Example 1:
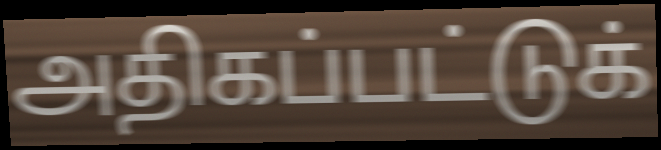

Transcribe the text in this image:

அதிகப்பட்டுக்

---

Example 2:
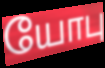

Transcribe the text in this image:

யோபு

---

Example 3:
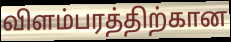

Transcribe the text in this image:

விளம்பரத்திற்கான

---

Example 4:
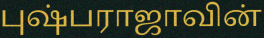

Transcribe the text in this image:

புஷ்பராஜாவின்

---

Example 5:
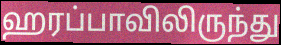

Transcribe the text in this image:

ஹரப்பாவிலிருந்து